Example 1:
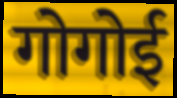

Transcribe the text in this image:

गोगोई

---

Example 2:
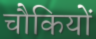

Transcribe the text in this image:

चौकियों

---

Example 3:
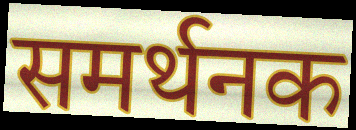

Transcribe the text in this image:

समर्थनक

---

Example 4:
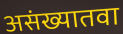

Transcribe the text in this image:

असंख्यातवा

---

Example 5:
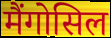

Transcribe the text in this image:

मैंगोसिल